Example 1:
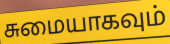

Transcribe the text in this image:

சுமையாகவும்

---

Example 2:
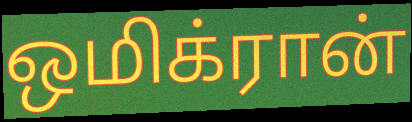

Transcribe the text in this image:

ஒமிக்ரான்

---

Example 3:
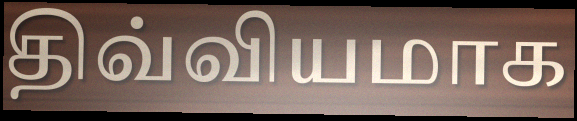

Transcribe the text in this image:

திவ்வியமாக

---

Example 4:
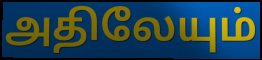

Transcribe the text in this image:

அதிலேயும்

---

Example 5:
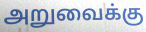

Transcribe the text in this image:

அறுவைக்கு